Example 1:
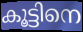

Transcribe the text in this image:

കൂട്ടിനെ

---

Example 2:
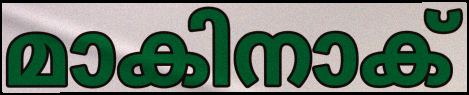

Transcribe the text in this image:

മാകിനാക്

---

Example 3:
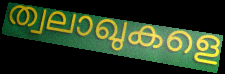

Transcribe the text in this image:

ത്വലാഖുകളെ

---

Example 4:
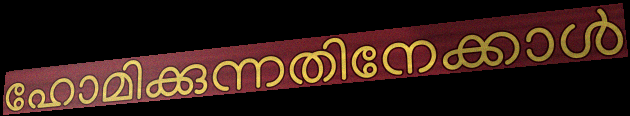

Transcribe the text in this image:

ഹോമിക്കുന്നതിനേക്കാൾ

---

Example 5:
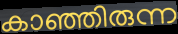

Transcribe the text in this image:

കാഞ്ഞിരുന്ന